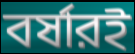
বর্ষারই